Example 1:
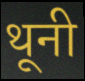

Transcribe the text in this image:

थूनी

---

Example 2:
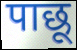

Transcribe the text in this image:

पाछू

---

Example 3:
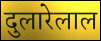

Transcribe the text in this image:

दुलारेलाल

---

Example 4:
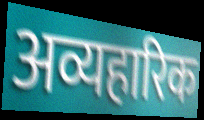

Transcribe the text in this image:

अव्यहारिक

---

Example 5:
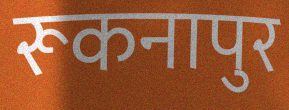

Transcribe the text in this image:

रूकनापुर